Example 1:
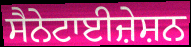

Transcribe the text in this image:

ਸੈਨੇਟਾਈਜ਼ੇਸ਼ਨ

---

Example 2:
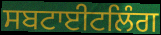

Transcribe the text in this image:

ਸਬਟਾਈਟਲਿੰਗ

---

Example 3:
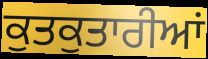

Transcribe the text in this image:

ਕੁਤਕੁਤਾਰੀਆਂ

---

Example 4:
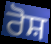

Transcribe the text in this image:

ਰੋਸ਼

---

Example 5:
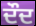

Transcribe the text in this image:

ਦੌਦ